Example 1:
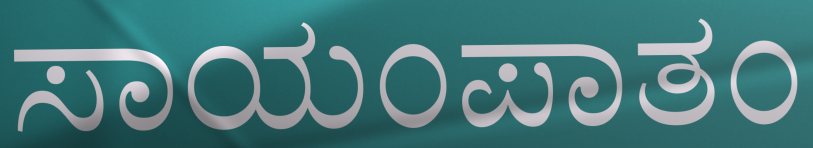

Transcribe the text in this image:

ಸಾಯಂಪಾತಂ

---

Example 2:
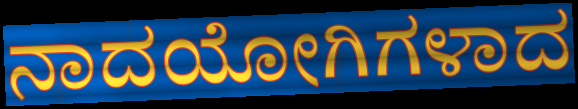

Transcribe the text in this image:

ನಾದಯೋಗಿಗಳಾದ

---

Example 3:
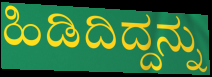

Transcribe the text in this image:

ಹಿಡಿದಿದ್ದನ್ನು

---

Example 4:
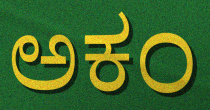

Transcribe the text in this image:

ಅಕಂ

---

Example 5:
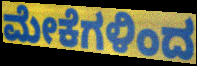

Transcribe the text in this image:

ಮೇಕೆಗಳಿಂದ